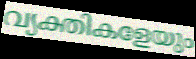
വ്യക്തികളേയും